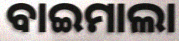
ବାଇମାଲା